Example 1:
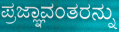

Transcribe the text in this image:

ಪ್ರಜ್ಞಾವಂತರನ್ನು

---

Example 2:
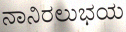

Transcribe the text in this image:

ನಾನಿರಲುಭಯ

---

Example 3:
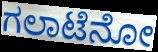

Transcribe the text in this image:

ಗಲಾಟೆನೋ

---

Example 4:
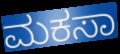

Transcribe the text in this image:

ಮಕಸಾ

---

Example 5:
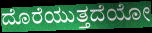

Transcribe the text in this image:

ದೊರೆಯುತ್ತದೆಯೋ